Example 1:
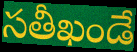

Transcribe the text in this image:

సతీఖండే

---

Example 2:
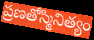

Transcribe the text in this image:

ప్రణతోస్మినిత్యం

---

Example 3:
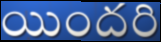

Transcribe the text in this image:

యిందరి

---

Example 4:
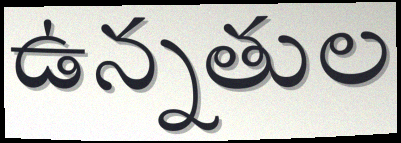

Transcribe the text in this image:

ఉన్నతుల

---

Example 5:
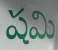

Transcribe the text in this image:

షమి